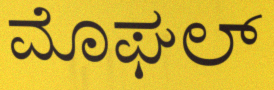
ಮೊಘಲ್